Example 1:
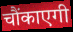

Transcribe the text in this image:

चौंकाएगी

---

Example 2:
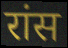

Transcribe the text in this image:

रांस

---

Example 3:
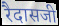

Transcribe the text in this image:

रैदासजी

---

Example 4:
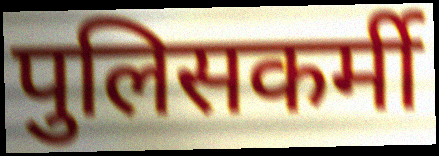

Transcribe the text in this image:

पुलिसकर्मी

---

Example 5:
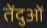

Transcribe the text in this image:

तेंदुओं